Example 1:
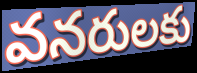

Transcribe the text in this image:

వనరులకు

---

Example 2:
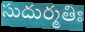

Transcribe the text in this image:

సుదుర్మతిః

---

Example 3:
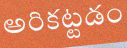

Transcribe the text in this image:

అరికట్టడం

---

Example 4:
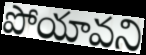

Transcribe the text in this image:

పోయావని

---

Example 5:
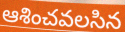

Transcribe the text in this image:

ఆశించవలసిన